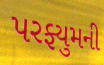
પરફ્યુમની